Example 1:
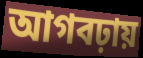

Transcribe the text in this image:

আগবঢ়ায়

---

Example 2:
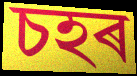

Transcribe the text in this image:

চহৰ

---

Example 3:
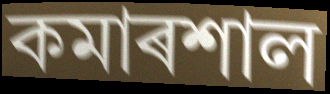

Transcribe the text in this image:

কমাৰশাল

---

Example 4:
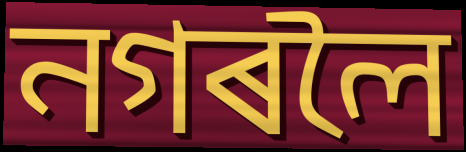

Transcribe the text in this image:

নগৰলৈ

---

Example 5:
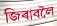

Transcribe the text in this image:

জিৰাবলৈ